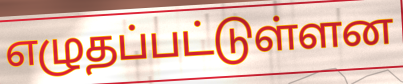
எழுதப்பட்டுள்ளன